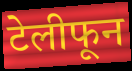
टेलीफून